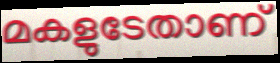
മകളുടേതാണ്